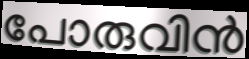
പോരുവിൻ